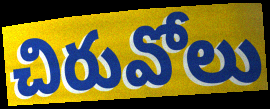
చిరువోలు